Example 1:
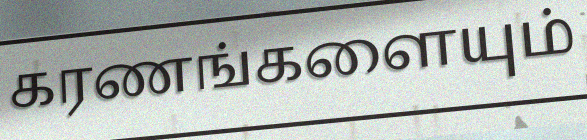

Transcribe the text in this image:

கரணங்களையும்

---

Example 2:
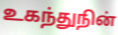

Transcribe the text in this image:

உகந்துநின்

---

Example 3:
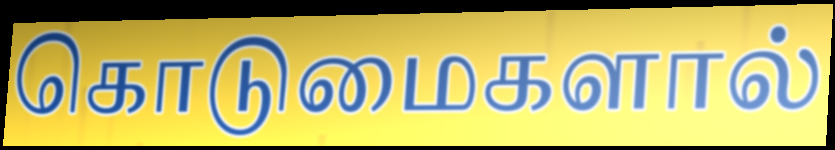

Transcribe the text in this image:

கொடுமைகளால்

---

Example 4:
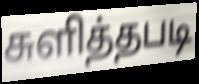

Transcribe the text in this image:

சுளித்தபடி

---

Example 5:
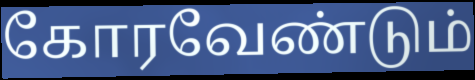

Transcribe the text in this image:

கோரவேண்டும்